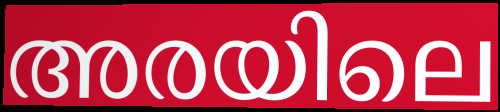
അരയിലെ